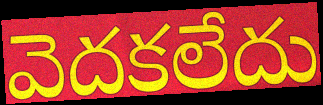
వెదకలేదు